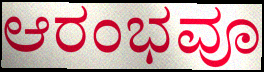
ಆರಂಭವೂ